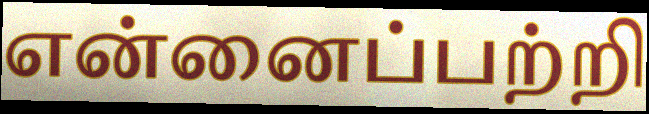
என்னைப்பற்றி